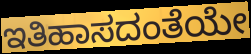
ಇತಿಹಾಸದಂತೆಯೇ